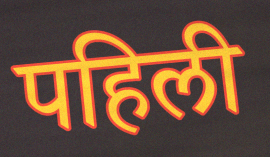
पहिली